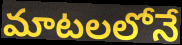
మాటలలోనే